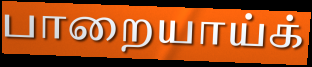
பாறையாய்க்